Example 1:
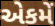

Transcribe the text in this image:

એકમેં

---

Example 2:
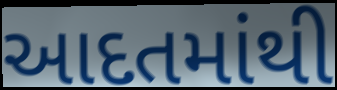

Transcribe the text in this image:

આદતમાંથી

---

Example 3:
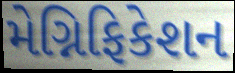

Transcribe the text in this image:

મેગ્નિફિકેશન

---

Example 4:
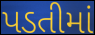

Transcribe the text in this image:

પડતીમાં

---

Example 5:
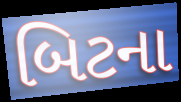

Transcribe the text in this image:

બિટના